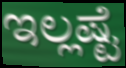
ಇಲ್ಲಷ್ಟೆ